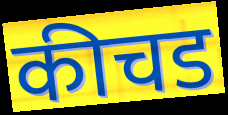
कीचड